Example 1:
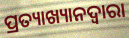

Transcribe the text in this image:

ପ୍ରତ୍ୟାଖ୍ୟାନଦ୍ଵାରା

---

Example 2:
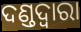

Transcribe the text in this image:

ଦଣ୍ଡଦ୍ୱାରା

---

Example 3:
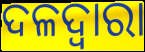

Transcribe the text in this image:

ଦଳଦ୍ୱାରା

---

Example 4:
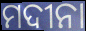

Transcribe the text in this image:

ମଦୀନା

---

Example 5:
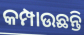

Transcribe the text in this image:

କମ୍ପାଉଛନ୍ତି